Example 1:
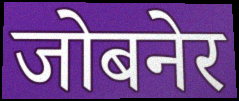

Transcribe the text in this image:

जोबनेर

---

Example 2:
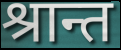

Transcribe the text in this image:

श्रान्त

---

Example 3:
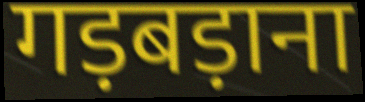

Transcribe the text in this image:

गड़बड़ाना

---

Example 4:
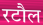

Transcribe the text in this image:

रटौल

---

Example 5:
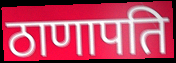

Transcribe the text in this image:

ठाणापति